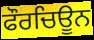
ਫੌਰਚਿਊਨ